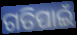
ଗତିପାଇଁ